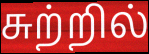
சுற்றில்